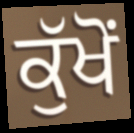
ਕੁੱਖੋਂ